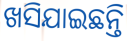
ଖସିଯାଇଛନ୍ତି